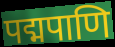
पद्मपाणि